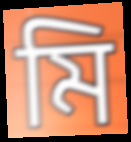
মি